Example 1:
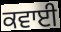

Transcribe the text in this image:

ਕਵਾਈ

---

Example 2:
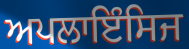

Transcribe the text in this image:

ਅਪਲਾਇੰਸਿਜ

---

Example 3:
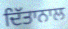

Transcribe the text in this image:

ਦਿੱਤਾਨਾਲ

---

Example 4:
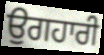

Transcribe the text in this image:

ਉਗਹਾਰੀ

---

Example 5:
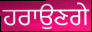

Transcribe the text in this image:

ਹਰਾਉਣਗੇ